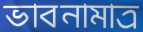
ভাবনামাত্র